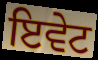
ਇਵੇਟ